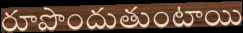
రూపొందుతుంటాయి